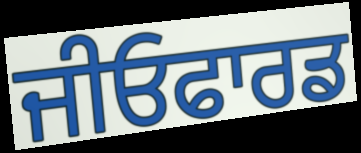
ਜੀਓਫਾਰਡ